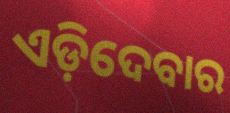
ଏଡ଼ିଦେବାର